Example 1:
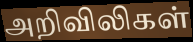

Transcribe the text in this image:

அறிவிலிகள்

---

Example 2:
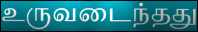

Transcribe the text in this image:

உருவடைந்தது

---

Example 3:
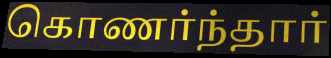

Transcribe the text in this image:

கொணர்ந்தார்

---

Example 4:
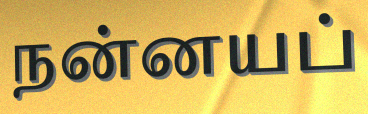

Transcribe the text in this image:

நன்னயப்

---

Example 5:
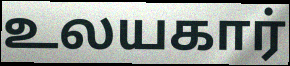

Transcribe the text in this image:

உலயகார்